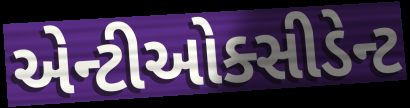
એન્ટીઓક્સીડેન્ટ